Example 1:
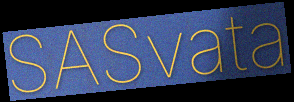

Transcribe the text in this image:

SASvata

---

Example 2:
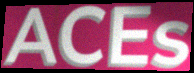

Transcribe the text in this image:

ACEs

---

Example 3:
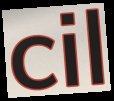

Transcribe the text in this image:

cil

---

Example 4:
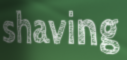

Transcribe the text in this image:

shaving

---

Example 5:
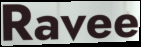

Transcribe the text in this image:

Ravee